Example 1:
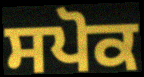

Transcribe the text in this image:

ਸਪੋਕ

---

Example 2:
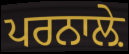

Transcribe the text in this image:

ਪਰਨਾਲ਼ੇ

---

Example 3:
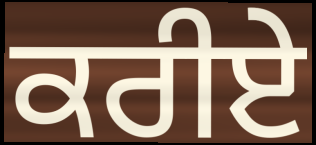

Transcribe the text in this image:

ਕਰੀਏੇ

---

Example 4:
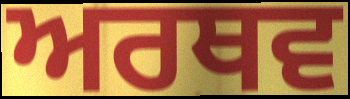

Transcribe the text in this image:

ਅਰਥਵ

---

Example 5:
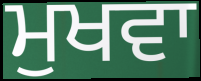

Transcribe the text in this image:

ਮੁਖਵਾ